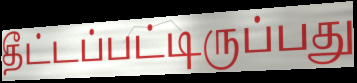
தீட்டப்பட்டிருப்பது